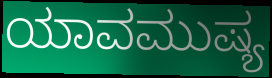
ಯಾವಮುಷ್ಯ